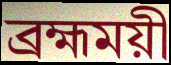
ব্রহ্মময়ী